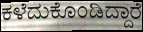
ಕಳೆದುಕೊಂಡಿದ್ದಾರೆ